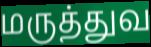
மருத்துவ